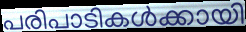
പരിപാടികൾക്കായി